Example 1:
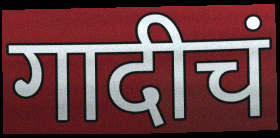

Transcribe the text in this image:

गादीचं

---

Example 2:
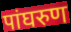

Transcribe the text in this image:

पांघरुण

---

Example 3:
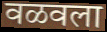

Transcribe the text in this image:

वळवला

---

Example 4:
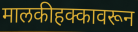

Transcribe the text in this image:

मालकीहक्कावरून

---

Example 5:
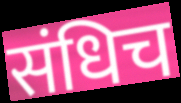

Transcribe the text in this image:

संधिच